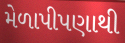
મેળાપીપણાથી